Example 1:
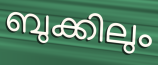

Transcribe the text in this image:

ബുക്കിലും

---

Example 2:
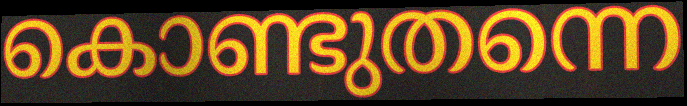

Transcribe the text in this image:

കൊണ്ടുതന്നെ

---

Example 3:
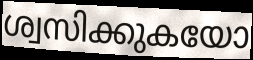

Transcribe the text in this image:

ശ്വസിക്കുകയോ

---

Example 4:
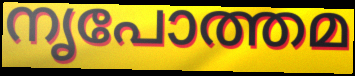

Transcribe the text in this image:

നൃപോത്തമ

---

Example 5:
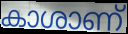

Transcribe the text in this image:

കാശാണ്